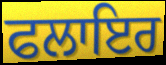
ਫਲਾਇਰ